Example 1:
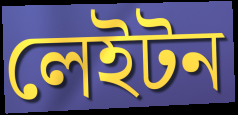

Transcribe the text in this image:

লেইটন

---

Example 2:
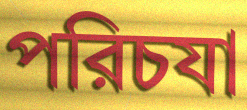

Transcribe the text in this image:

পরিচযা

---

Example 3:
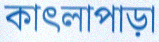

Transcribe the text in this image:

কাৎলাপাড়া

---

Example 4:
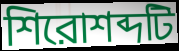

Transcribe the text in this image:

শিরোশব্দটি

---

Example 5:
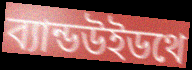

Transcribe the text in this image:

ব্যান্ডউইডথে